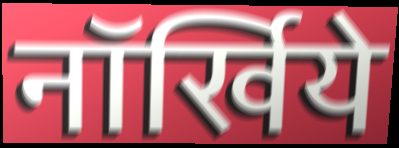
नॉर्खिये